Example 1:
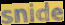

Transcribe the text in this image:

snide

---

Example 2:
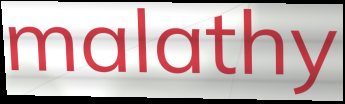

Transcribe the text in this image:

malathy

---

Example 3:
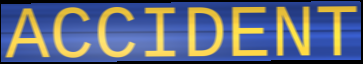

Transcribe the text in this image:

ACCIDENT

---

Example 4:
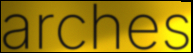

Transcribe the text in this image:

arches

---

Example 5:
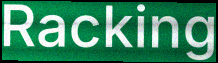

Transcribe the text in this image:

Racking